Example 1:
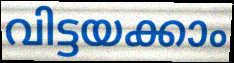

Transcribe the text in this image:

വിട്ടയക്കാം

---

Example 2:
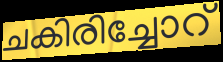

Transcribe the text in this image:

ചകിരിച്ചോറ്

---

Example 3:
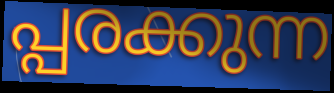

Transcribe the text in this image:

പ്പരക്കുന്ന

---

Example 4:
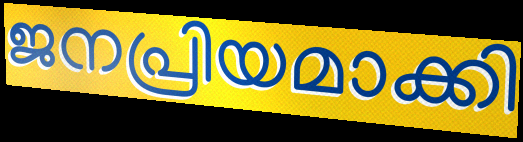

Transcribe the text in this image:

ജനപ്രിയമാക്കി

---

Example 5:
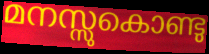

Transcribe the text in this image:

മനസ്സുകൊണ്ടു